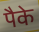
पैके